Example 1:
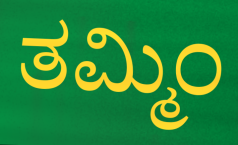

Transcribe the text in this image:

ತಮ್ಮಿಂ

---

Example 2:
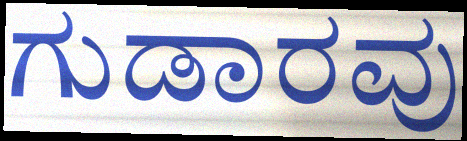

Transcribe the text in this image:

ಗುಡಾರವು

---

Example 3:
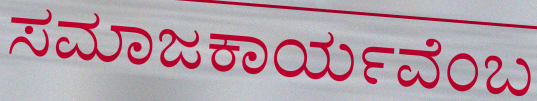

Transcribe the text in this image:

ಸಮಾಜಕಾರ್ಯವೆಂಬ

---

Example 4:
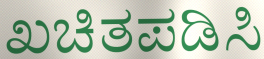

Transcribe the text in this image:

ಖಚಿತಪಡಿಸಿ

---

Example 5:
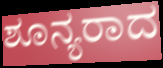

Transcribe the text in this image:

ಶೂನ್ಯರಾದ